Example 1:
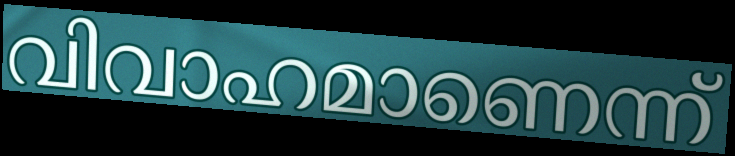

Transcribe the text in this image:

വിവാഹമാണെന്ന്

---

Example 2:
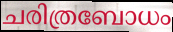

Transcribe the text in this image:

ചരിത്രബോധം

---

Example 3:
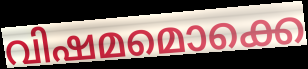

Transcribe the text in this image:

വിഷമമൊക്കെ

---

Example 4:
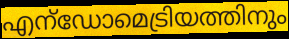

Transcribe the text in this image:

എന്ഡോമെട്രിയത്തിനും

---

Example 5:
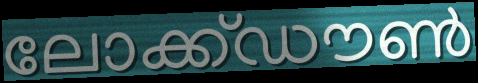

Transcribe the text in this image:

ലോക്ക്ഡൗൺ